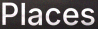
Places